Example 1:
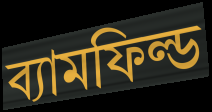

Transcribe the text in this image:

ব্যামফিল্ড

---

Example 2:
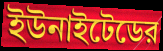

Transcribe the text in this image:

ইউনাইটেডের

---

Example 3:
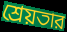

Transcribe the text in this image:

শ্রেয়তার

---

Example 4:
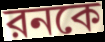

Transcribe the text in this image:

রনকে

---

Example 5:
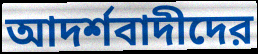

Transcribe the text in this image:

আদর্শবাদীদের